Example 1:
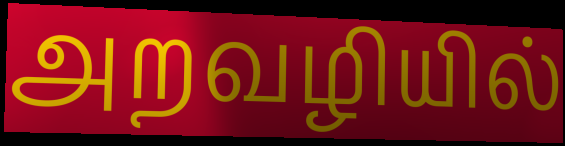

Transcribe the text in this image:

அறவழியில்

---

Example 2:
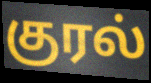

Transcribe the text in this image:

குரல்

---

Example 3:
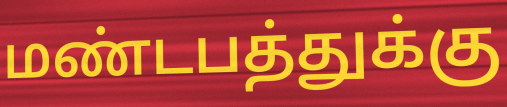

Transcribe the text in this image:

மண்டபத்துக்கு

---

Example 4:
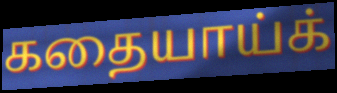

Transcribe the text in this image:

கதையாய்க்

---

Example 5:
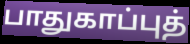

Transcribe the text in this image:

பாதுகாப்புத்